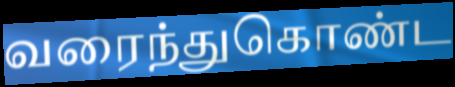
வரைந்துகொண்ட